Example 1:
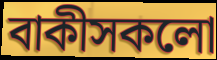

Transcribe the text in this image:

বাকীসকলো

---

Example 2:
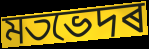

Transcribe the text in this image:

মতভেদৰ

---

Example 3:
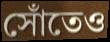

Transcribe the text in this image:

সোঁতেও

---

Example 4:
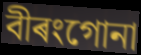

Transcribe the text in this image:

বীৰংগোনা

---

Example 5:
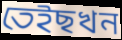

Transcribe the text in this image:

তেইছখন